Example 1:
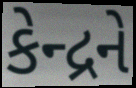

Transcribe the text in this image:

કેન્દ્રને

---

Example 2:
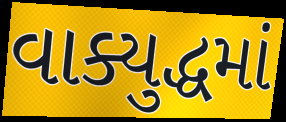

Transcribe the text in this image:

વાક્યુદ્ધમાં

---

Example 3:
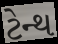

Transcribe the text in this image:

ટેન્થ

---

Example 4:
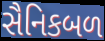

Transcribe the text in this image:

સૈનિકબળ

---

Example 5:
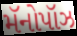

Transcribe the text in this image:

મૅનોપૉઝ